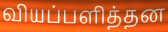
வியப்பளித்தன